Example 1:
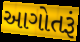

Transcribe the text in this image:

આગોતરૂં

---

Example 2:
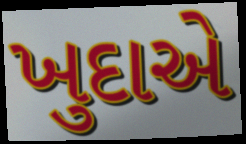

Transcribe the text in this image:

ખુદાએ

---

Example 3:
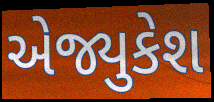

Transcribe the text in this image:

એજ્યુકેશ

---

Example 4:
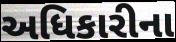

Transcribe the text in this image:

અધિકારીના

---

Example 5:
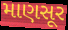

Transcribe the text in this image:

માણસૂર